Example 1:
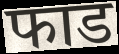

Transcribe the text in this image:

फाड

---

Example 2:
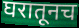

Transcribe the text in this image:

घरातूनच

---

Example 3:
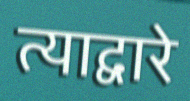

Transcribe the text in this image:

त्याद्वारे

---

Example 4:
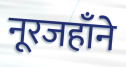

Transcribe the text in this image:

नूरजहाँने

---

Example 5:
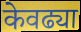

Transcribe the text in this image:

केवढ्या